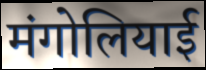
मंगोलियाई